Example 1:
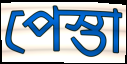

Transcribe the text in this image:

পেস্তা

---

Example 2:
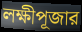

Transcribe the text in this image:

লক্ষীপূজার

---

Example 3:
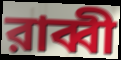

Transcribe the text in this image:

রাব্বী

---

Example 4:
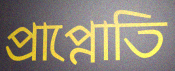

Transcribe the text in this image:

প্রাপ্নোতি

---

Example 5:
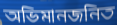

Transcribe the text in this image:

অভিমানজনিত